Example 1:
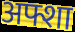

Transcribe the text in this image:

अफ्शा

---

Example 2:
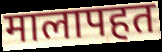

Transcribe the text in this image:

मालापहत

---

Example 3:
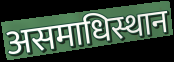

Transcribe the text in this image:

असमाधिस्थान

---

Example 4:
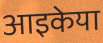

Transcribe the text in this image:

आइकेया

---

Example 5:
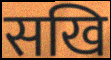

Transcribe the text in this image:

सखि